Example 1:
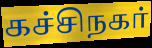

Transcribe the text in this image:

கச்சிநகர்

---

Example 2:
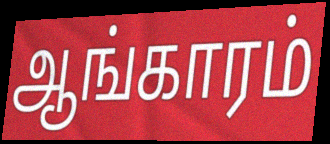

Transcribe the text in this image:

ஆங்காரம்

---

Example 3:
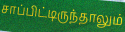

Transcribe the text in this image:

சாப்பிட்டிருந்தாலும்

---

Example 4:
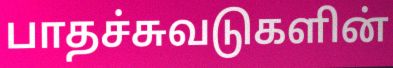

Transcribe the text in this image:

பாதச்சுவடுகளின்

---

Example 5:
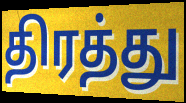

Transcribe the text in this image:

திரத்து